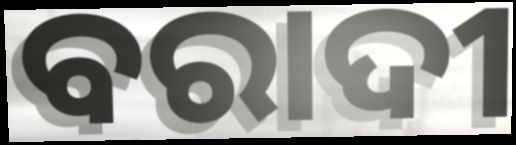
ବରାଦୀ